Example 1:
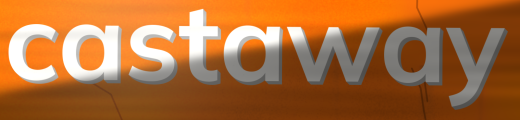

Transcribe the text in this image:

castaway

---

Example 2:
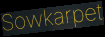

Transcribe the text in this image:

Sowkarpet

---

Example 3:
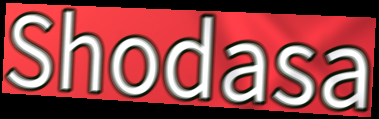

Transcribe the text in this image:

Shodasa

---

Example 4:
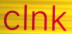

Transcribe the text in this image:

clnk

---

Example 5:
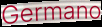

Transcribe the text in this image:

Germano